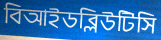
বিআইডব্লিউটিসি